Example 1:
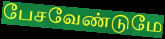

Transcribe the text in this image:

பேசவேண்டுமே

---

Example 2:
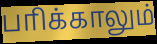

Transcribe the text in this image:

பரிக்காலும்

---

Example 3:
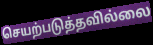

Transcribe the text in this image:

செயற்படுத்தவில்லை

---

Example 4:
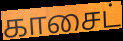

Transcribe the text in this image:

காசைட்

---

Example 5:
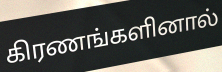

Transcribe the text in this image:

கிரணங்களினால்